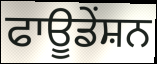
ਫਾਊਡੇਂਸ਼ਨ